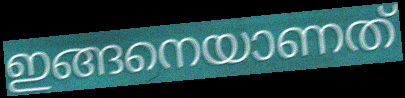
ഇങ്ങനെയാണത്